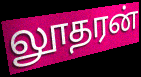
லூதரன்